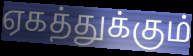
ஏகத்துக்கும்